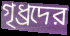
গৃধ্রদের